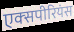
एक्‍सपीरियंस